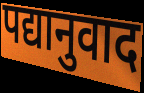
पद्यानुवाद